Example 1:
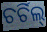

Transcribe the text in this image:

ଚର୍ଚିଲ୍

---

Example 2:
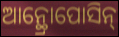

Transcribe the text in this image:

ଆନ୍ଥ୍ରୋପୋସିନ୍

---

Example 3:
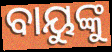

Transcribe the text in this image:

ବାୟୁଙ୍କୁ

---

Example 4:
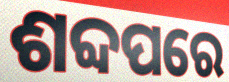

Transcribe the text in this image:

ଶବ୍ଦପରେ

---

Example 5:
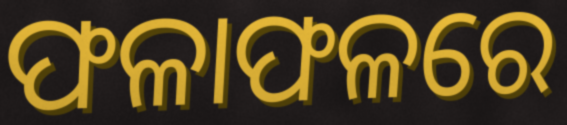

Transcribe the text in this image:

ଫଳାଫଳରେ